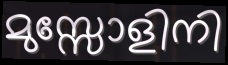
മുസ്സോളിനി